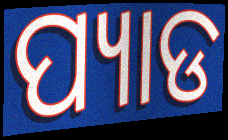
ପ୍ୟାଡ